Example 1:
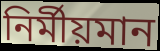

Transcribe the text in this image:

নির্মীয়মান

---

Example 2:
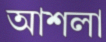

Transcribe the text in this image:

আশলা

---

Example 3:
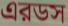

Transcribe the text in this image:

এরডস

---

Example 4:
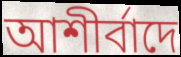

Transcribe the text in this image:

আশীর্বাদে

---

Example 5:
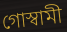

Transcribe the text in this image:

গোস্বামী